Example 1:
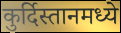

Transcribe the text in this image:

कुर्दिस्तानमध्ये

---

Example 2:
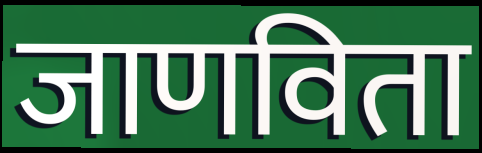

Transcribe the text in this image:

जाणविता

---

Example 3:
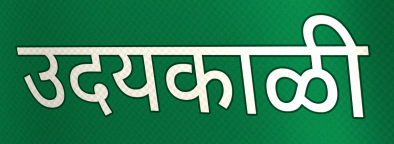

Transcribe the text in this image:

उदयकाळी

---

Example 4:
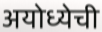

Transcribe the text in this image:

अयोध्येची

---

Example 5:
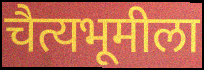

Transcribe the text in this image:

चैत्यभूमीला